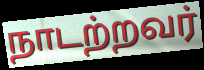
நாடற்றவர்